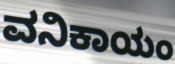
ವನಿಕಾಯಂ